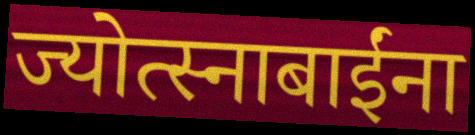
ज्योत्स्नाबाईंना